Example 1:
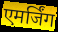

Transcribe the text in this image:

एमर्जिंग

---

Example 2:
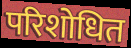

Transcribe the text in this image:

परिशोधित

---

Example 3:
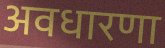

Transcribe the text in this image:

अवधारणा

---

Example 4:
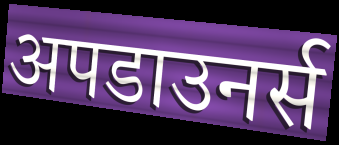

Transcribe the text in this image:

अपडाउनर्स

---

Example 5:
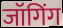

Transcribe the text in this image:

जॉगिंग